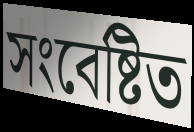
সংবেষ্টিত